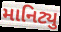
માનિટ્યુ